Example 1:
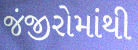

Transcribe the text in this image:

જંજીરોમાંથી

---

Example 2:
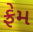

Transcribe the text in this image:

ફ્રેમ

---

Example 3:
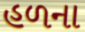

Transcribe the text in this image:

હળના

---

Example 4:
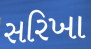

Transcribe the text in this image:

સરિખા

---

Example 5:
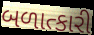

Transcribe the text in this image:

બળાત્કારી